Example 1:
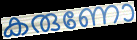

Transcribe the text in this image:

കരുണോ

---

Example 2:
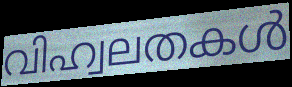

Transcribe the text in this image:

വിഹ്വലതകൾ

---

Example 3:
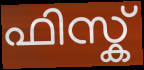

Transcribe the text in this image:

ഫിസ്ക്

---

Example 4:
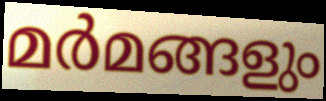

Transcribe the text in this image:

മർമങ്ങളും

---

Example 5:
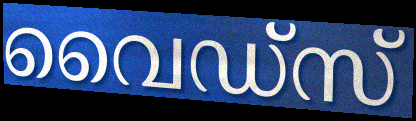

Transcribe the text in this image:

വൈഡ്സ്